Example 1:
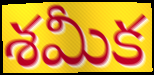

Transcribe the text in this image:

శమీక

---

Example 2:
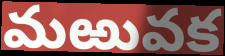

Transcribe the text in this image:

మఱువక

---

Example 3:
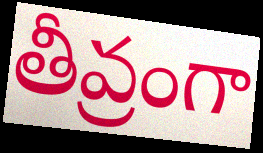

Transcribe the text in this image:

తీవ్రంగా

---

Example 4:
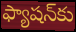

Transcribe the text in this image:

ఫ్యాషన్‌కు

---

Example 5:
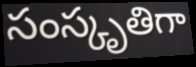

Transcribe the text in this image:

సంస్కృతిగా